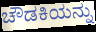
ಚೌಡಕಿಯನ್ನು